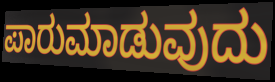
ಪಾರುಮಾಡುವುದು